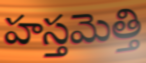
హస్తమెత్తి